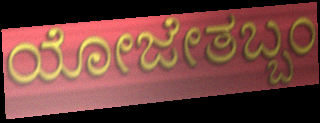
ಯೋಜೇತಬ್ಬಂ